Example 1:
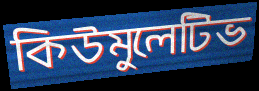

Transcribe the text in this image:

কিউমুলেটিভ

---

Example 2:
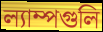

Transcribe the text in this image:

ল্যাম্পগুলি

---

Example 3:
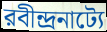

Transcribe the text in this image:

রবীন্দ্রনাট্যে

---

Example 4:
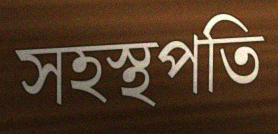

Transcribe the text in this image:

সহস্থপতি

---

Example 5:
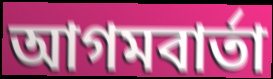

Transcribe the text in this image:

আগমবার্তা